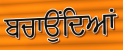
ਬਚਾਉਂਦਿਆਂ